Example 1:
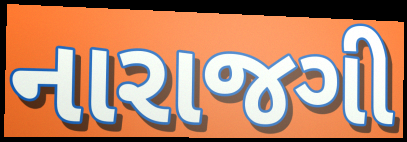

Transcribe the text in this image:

નારાજગી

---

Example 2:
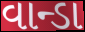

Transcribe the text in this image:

વાન્ડા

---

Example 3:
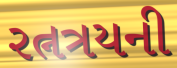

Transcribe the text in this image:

રત્નત્રયની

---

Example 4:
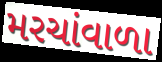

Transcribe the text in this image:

મરચાંવાળા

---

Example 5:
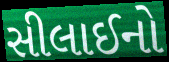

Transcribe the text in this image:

સીલાઈનો